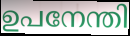
ഉപനേന്തി